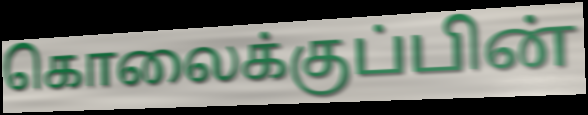
கொலைக்குப்பின்